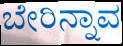
ಬೇರಿನ್ನಾವ